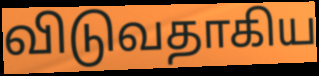
விடுவதாகிய